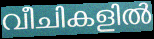
വീചികളിൽ